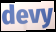
devy